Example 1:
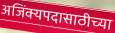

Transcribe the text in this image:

अजिंक्यपदासाठीच्या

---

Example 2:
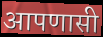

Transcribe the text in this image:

आपणासी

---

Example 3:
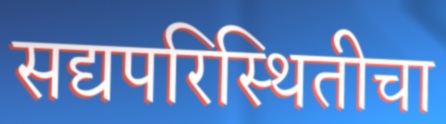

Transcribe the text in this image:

सद्यपरिस्थितीचा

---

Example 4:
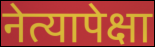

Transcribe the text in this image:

नेत्यापेक्षा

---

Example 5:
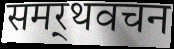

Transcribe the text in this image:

समर्थवचन